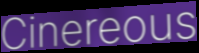
Cinereous